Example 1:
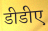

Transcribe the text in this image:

डीडीए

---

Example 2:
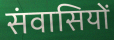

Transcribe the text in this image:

संवासियों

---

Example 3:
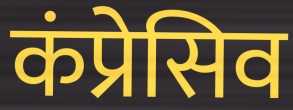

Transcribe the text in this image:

कंप्रेसिव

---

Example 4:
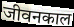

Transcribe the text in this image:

जीवनकाल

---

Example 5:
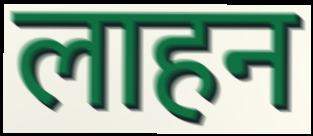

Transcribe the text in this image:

लाहन